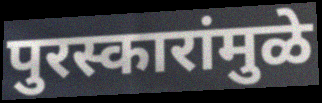
पुरस्कारांमुळे